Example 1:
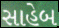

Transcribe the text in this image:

સાહેબ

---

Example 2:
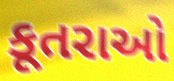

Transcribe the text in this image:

કૂતરાઓ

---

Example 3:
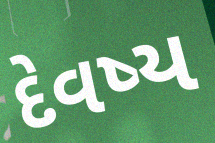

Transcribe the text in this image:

દેવષ્ય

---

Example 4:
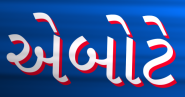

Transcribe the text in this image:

એબોટે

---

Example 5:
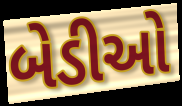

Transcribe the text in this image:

બેડીઓ